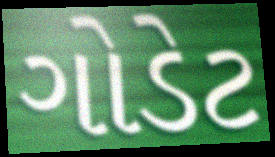
ગોડેટ